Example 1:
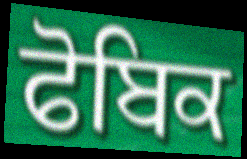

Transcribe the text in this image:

ਫੋਬਿਕ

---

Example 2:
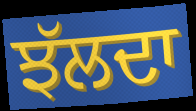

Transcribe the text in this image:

ਝੱਲਦਾ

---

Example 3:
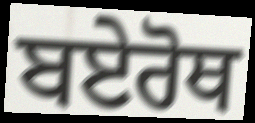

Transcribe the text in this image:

ਬਏਰੋਥ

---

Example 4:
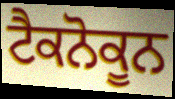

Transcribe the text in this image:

ਟੈਕਨੋਕੂਨ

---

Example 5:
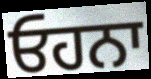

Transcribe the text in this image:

ਓਹਨਾ